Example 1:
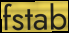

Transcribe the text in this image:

fstab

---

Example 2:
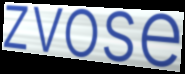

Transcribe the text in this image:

zvose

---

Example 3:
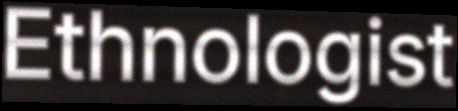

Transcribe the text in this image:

Ethnologist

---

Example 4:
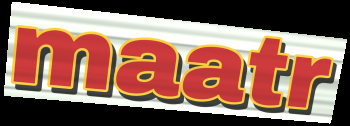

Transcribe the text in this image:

maatr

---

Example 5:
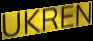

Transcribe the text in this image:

UKREN